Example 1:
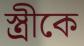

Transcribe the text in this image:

স্ত্রীকে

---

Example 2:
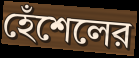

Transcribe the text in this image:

হেঁশেলের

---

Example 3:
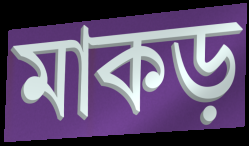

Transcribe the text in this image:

মাকড়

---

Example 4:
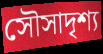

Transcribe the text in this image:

সৌসাদৃশ্য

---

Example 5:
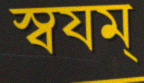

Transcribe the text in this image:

স্বযম্